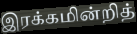
இரக்கமின்றித்